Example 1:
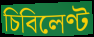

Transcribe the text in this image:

চিবিলেণ্ট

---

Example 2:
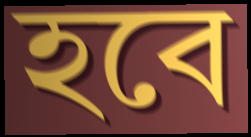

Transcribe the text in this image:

হবে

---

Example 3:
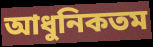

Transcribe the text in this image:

আধুনিকতম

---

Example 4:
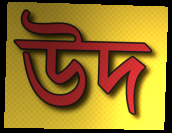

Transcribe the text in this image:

উদ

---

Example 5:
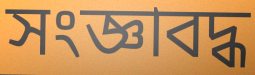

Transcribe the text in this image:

সংজ্ঞাবদ্ধ